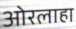
ओरलाहा